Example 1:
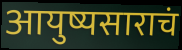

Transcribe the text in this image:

आयुष्यसाराचं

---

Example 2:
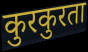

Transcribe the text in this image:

कुरकुरता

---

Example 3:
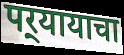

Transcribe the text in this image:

पर्यायाचा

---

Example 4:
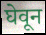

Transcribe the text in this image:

घेवून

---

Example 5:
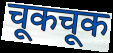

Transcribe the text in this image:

चूकचूक